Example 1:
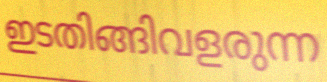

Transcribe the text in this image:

ഇടതിങ്ങിവളരുന്ന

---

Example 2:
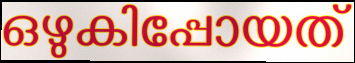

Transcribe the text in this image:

ഒഴുകിപ്പോയത്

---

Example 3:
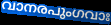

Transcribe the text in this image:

വാനരപുംഗവാഃ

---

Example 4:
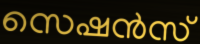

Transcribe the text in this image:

സെഷൻസ്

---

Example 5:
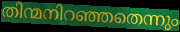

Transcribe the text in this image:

തിന്മനിറഞ്ഞതെന്നും